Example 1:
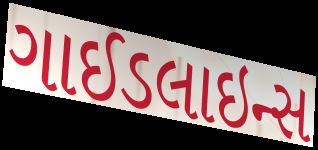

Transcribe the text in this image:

ગાઈડલાઇન્સ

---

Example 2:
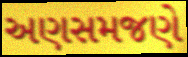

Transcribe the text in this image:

અણસમજણે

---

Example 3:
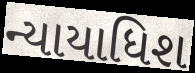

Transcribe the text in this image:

ન્યાયાધિશ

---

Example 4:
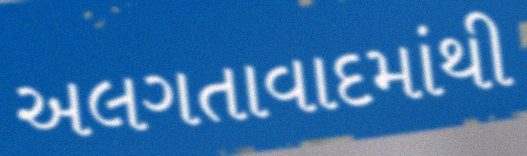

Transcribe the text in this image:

અલગતાવાદમાંથી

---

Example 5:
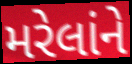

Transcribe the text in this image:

મરેલાંને